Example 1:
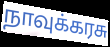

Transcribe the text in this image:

நாவுக்கரசு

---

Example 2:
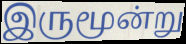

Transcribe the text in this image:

இருமூன்று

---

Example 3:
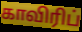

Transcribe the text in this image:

காவிரிப்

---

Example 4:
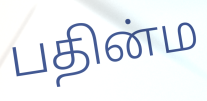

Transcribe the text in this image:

பதின்ம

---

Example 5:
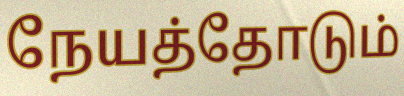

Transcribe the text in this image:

நேயத்தோடும்